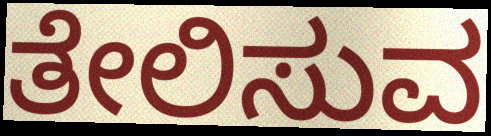
ತೇಲಿಸುವ